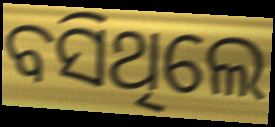
ବସିଥିଲେ